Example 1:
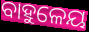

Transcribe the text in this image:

ବାହୁଳେୟ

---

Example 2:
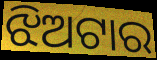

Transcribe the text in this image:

ଝିଅଟାର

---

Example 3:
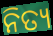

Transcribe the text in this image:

ନିତ୍ୟ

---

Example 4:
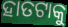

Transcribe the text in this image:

ହାତଟାକୁ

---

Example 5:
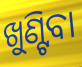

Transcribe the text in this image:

ଖୁଣ୍ଟିବା